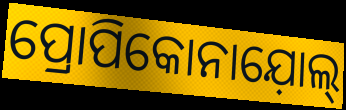
ପ୍ରୋପିକୋନାଯ଼ୋଲ୍